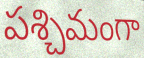
పశ్చిమంగా